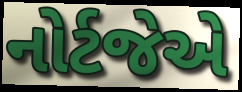
નોર્ટજેએ